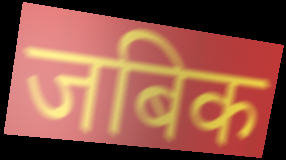
जबिक